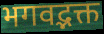
भगवद्भक्त